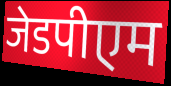
जेडपीएम